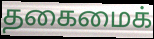
தகைமைக்